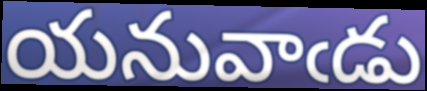
యనువాఁడు